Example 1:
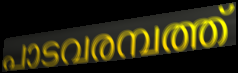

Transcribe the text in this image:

പാടവരമ്പത്ത്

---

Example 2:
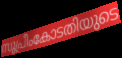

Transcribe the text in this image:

സുപ്രീംകോടതിയുടെ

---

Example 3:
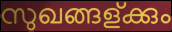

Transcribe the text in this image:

സുഖങ്ങള്ക്കും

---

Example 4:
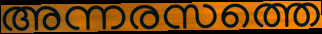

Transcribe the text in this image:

അന്നരസത്തെ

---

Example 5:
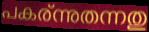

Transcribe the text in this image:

പകര്ന്നുതന്നതു